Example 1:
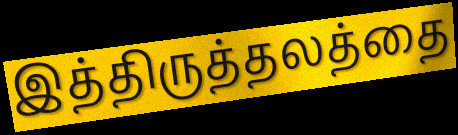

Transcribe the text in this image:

இத்திருத்தலத்தை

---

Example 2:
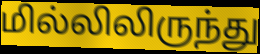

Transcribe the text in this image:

மில்லிலிருந்து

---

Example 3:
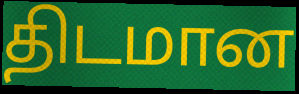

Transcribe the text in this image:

திடமான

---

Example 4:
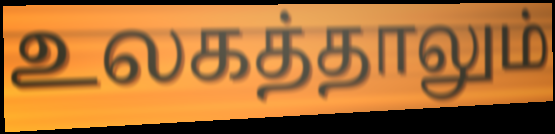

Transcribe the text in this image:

உலகத்தாலும்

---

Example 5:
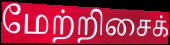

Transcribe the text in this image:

மேற்றிசைக்